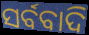
ସର୍ବବାଦି